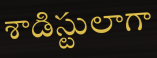
శాడిస్టులాగా